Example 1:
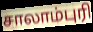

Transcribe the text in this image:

சாலாம்புரி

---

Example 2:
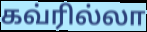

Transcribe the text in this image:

கவ்ரில்லா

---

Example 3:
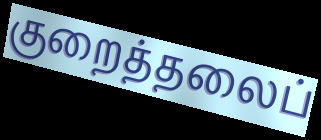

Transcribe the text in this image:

குறைத்தலைப்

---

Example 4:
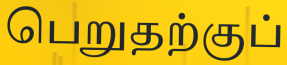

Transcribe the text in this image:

பெறுதற்குப்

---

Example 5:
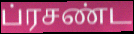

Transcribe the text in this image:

ப்ரசண்ட